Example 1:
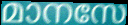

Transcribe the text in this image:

മാനസേ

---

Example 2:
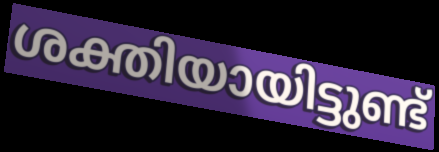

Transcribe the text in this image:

ശക്തിയായിട്ടുണ്ട്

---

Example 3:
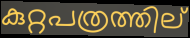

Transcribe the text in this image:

കുറ്റപത്രത്തില്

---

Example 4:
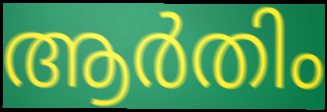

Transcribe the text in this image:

ആർതിം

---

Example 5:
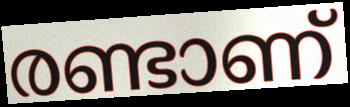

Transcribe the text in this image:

രണ്ടാണ്